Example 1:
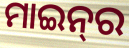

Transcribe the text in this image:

ମାଇନ୍‍ର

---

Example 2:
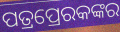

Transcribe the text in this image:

ପତ୍ରପ୍ରେରକଙ୍କର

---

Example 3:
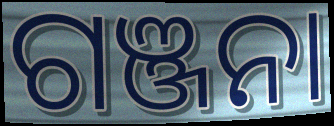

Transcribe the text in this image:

ଗଞ୍ଜନା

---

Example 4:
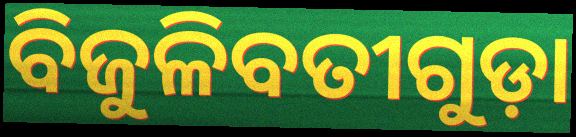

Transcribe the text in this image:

ବିଜୁଳିବତୀଗୁଡ଼ା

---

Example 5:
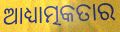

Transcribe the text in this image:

ଆଧ୍ୟାତ୍ମକତାର